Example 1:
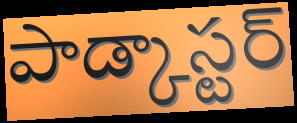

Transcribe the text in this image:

పాడ్కాస్టర్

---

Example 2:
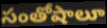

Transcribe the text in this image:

సంతోషాలూ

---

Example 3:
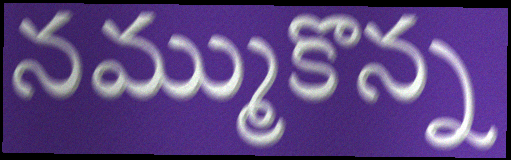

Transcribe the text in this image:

నమ్ముకొన్న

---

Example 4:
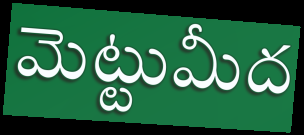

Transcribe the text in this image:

మెట్టుమీద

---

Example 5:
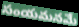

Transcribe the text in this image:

సంయమనమే